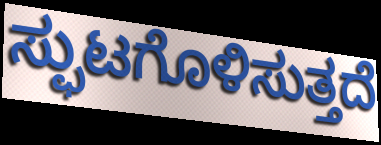
ಸ್ಫುಟಗೊಳಿಸುತ್ತದೆ